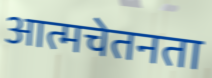
आत्मचेतनता